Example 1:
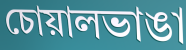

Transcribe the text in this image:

চোয়ালভাঙা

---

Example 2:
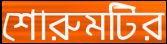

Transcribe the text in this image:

শোরুমটির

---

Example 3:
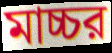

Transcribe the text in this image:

মাচ্চর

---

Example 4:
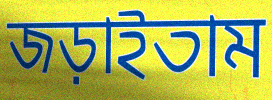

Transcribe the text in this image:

জড়াইতাম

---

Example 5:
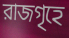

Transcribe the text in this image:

রাজগৃহে